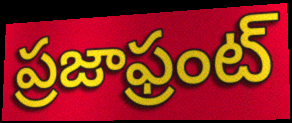
ప్రజాఫ్రంట్